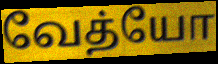
வேத்யோ